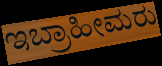
ಇಬ್ರಾಹೀಮರು